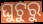
ଘୁଟୁରୁ